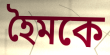
হৈমকে